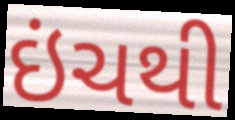
ઇંચથી